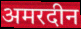
अमरदीन